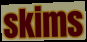
skims